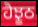
ਹੈਝੂਠ